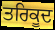
ਤਰਿਕੂਦ